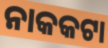
ନାକକଟା